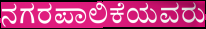
ನಗರಪಾಲಿಕೆಯವರು